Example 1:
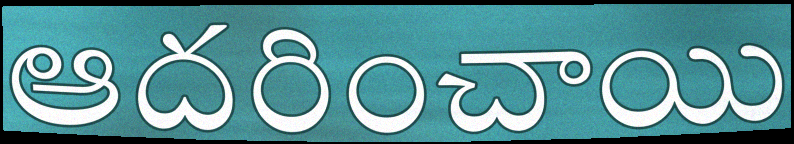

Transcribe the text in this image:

ఆదరించాయి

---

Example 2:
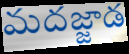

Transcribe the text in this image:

మదజ్జాడ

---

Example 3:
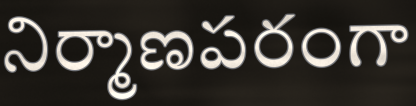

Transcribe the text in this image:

నిర్మాణపరంగా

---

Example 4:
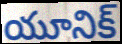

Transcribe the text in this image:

యూనిక్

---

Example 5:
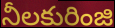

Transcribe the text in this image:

నీలకురింజి